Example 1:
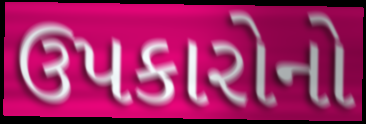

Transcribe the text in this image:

ઉપકારોનો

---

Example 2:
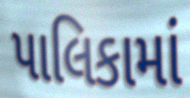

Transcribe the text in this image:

પાલિકામાં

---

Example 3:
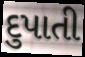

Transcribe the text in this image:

દુપાતી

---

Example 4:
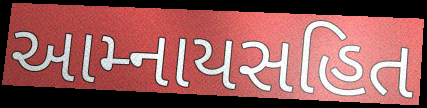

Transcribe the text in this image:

આમ્નાયસહિત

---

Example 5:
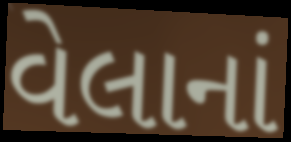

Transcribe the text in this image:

વેલાનાં